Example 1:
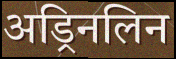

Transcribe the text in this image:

अड्रिनलिन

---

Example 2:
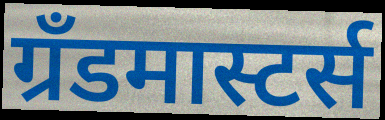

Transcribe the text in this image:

ग्रँडमास्टर्स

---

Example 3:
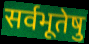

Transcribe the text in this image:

सर्वभूतेषु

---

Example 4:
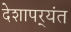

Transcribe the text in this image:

देशापर्यंत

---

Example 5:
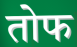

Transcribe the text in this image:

तोफ